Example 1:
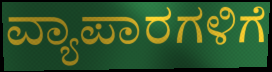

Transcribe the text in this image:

ವ್ಯಾಪಾರಗಳಿಗೆ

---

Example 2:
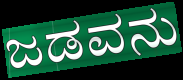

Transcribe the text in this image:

ಜಡವನು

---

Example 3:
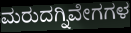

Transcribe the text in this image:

ಮರುದಗ್ನಿವೇಗಗಳ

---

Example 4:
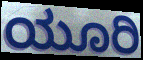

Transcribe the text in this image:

ಯೂರಿ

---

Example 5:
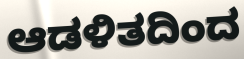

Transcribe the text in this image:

ಆಡಳಿತದಿಂದ